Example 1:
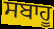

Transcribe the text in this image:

ਸਬਾਹੂ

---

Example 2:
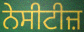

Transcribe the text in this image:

ਨੇਸੀਟੀਜ਼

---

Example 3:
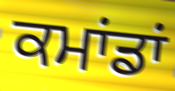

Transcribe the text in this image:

ਕਮਾਂਡਾਂ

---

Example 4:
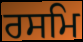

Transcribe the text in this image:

ਰਸਮਿ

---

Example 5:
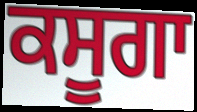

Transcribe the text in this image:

ਕਸੂਗਾ